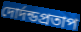
দোর্দন্ডপ্রতাপ